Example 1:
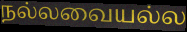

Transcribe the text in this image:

நல்லவையல்ல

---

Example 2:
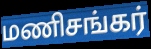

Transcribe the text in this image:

மணிசங்கர்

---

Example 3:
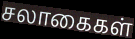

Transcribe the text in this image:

சலாகைகள்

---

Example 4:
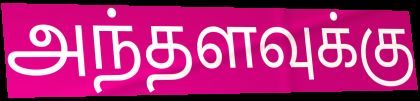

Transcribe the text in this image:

அந்தளவுக்கு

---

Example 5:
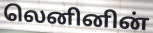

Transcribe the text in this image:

லெனினின்